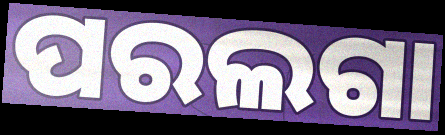
ପରଲଗା